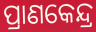
ପ୍ରାଣକେନ୍ଦ୍ର